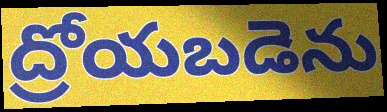
ద్రోయబడెను